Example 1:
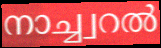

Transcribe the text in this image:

നാച്ച്വറൽ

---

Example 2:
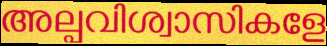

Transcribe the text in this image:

അല്പവിശ്വാസികളേ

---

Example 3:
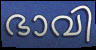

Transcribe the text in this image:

ഭാവി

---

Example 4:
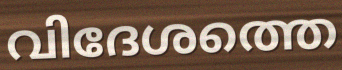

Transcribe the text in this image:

വിദേശത്തെ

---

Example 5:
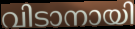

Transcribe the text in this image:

വിടാനായി